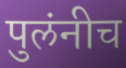
पुलंनीच